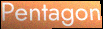
Pentagon